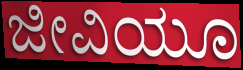
ಜೀವಿಯೂ